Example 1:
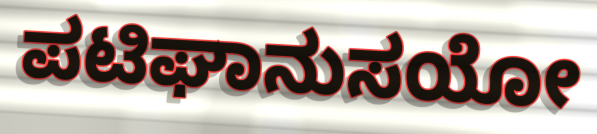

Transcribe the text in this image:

ಪಟಿಘಾನುಸಯೋ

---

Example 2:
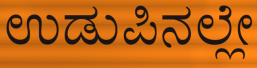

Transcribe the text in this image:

ಉಡುಪಿನಲ್ಲೇ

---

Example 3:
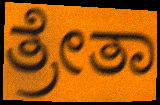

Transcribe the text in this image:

ತ್ರೇತಾ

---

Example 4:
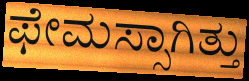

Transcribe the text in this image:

ಫೇಮಸ್ಸಾಗಿತ್ತು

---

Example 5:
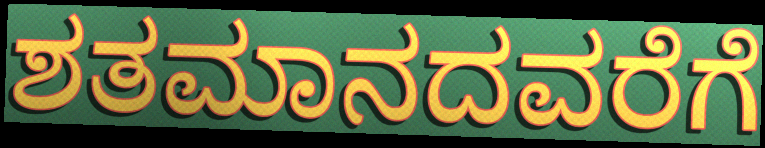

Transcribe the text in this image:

ಶತಮಾನದವರೆಗೆ